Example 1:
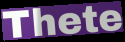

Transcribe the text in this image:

Thete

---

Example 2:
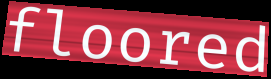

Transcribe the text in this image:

floored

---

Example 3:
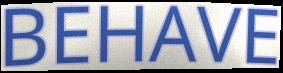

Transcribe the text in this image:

BEHAVE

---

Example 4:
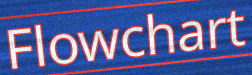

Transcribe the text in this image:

Flowchart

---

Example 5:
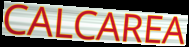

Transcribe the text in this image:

CALCAREA